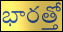
భారత్తో